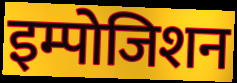
इम्पोजिशन